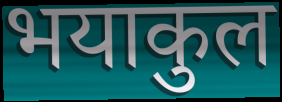
भयाकुल